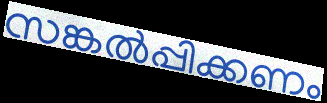
സങ്കൽപ്പിക്കണം